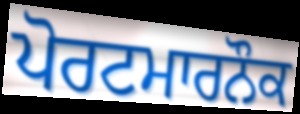
ਪੋਰਟਮਾਰਨੌਕ